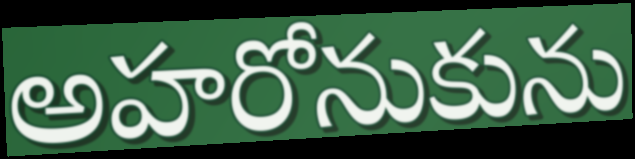
అహరోనుకును